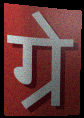
ग्रे